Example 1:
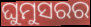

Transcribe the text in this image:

ଘୁମୁସରର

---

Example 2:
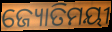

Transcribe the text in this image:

ଜ୍ୟୋତିମୟୀ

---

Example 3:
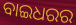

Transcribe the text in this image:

ବାଇଧରର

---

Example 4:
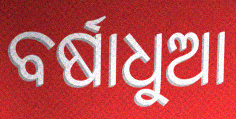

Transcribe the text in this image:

ବର୍ଷାଧୁଆ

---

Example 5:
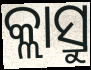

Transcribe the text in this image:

କ୍ଲାସ୍ରୁ